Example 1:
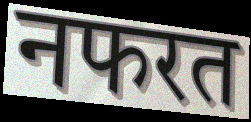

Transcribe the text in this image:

नफरत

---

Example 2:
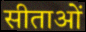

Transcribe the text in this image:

सीताओं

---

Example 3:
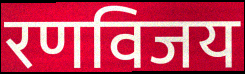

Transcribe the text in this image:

रणविजय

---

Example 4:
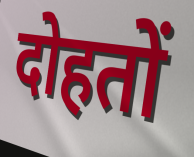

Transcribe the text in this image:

दोहतों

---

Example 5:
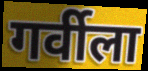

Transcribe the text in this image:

गर्वीला